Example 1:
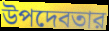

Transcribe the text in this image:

উপদেবতার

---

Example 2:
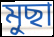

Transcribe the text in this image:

মুছা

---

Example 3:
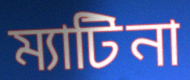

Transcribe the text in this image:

ম্যাটিনা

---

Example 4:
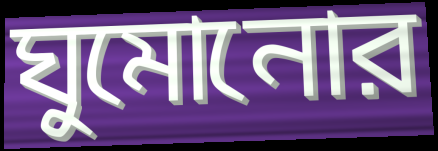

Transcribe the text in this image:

ঘুমোনোর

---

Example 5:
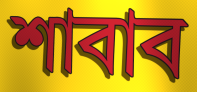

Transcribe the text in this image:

শাবাব